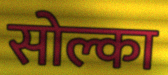
सोल्का